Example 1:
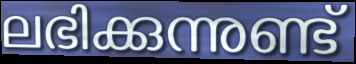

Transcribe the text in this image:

ലഭിക്കുന്നുണ്ട്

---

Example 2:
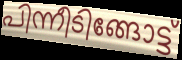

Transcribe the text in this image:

പിന്നീടിങ്ങോട്ട്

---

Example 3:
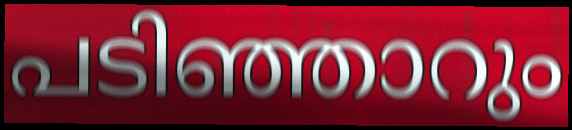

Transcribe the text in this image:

പടിഞ്ഞാറും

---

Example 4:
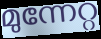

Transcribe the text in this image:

മുന്നേറ്റ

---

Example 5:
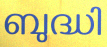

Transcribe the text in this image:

ബുദ്ധി